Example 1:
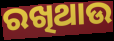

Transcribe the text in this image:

ରଖିଥାଉ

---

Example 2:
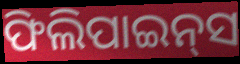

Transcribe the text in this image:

ଫିଲିପାଇନ୍‍ସ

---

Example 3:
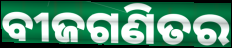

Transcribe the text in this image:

ବୀଜଗଣିତର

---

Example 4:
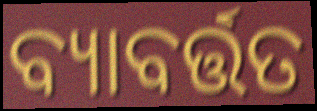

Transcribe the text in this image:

ବ୍ୟାବର୍ତ୍ତତ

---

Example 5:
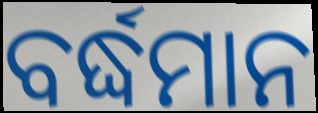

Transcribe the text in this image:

ବର୍ଦ୍ଧମାନ